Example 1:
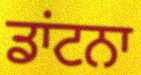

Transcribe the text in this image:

ਡਾਂਟਨਾ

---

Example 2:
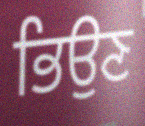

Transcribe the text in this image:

ਭਿਉਣ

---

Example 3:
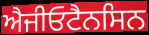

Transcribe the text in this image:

ਐਜੀਓਟੈਨਸਿਨ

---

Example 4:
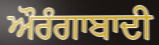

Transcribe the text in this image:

ਔਰੰਗਾਬਾਦੀ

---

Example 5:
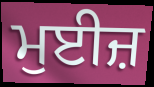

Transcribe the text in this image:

ਮੁਈਜ਼